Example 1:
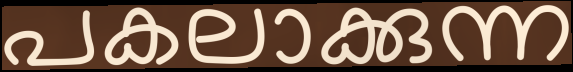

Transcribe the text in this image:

പകലാക്കുന്ന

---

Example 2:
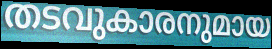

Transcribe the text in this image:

തടവുകാരനുമായ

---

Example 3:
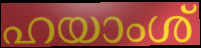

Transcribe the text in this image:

ഹയാംശ്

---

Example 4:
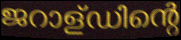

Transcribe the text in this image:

ജറാള്ഡിന്റെ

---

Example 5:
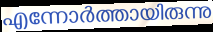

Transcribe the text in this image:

എന്നോർത്തായിരുന്നു